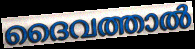
ദൈവത്താൽ